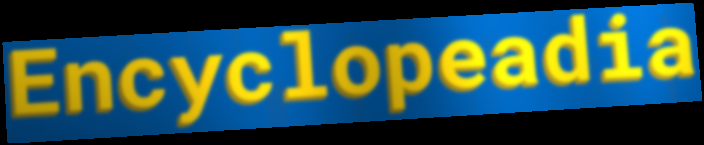
Encyclopeadia